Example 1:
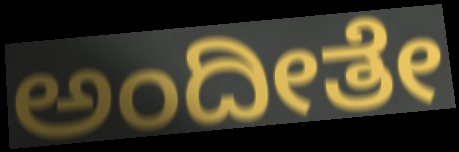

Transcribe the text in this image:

ಅಂದೀತೇ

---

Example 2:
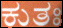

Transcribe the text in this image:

ಕುತಃ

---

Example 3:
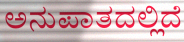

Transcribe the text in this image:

ಅನುಪಾತದಲ್ಲಿದೆ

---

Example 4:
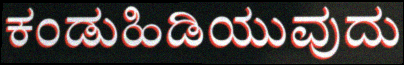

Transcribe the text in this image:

ಕಂಡುಹಿಡಿಯುವುದು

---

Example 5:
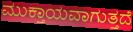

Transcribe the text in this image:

ಮುಕ್ತಾಯವಾಗುತ್ತದೆ